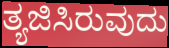
ತ್ಯಜಿಸಿರುವುದು